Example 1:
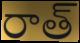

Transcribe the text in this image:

రాత్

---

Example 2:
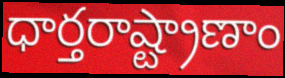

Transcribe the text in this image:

ధార్తరాష్ట్రాణాం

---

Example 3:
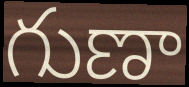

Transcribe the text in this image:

గుణా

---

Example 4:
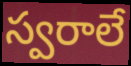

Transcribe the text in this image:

స్వరాలే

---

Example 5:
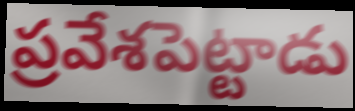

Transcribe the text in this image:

ప్రవేశపెట్టాడు